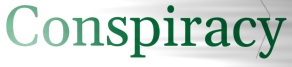
Conspiracy